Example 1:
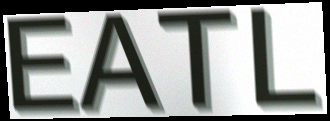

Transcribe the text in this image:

EATL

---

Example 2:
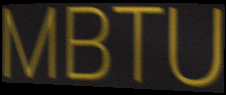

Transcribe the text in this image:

MBTU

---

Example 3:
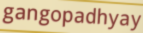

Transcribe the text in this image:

gangopadhyay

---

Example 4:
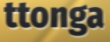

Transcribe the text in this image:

ttonga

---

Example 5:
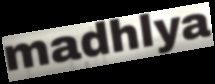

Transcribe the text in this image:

madhlya